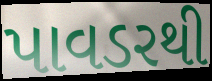
પાવડરથી